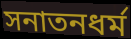
সনাতনধর্ম